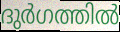
ദുർഗത്തിൽ